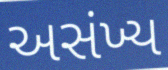
અસંખ્ય